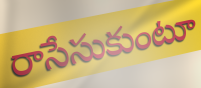
రాసేసుకుంటూ